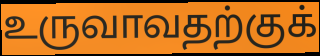
உருவாவதற்குக்